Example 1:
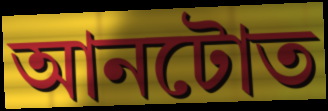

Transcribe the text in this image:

আনটোত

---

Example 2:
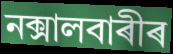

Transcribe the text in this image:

নক্সালবাৰীৰ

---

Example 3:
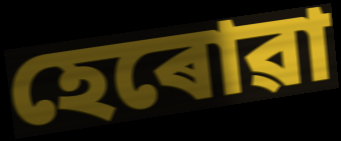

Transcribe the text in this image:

হেৰোৱা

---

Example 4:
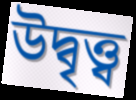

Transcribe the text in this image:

উদ্বৃত্ত্ব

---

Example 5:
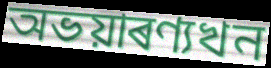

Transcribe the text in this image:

অভয়াৰণ্যখন